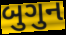
બુગુન